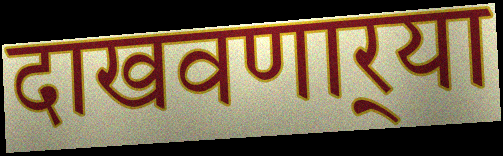
दाखवणार्या